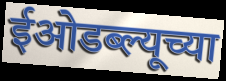
ईओडब्ल्यूच्या